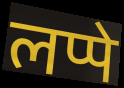
लप्पे